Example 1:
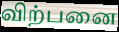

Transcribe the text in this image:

விற்பனை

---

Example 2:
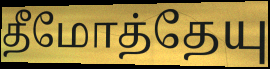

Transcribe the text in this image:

தீமோத்தேயு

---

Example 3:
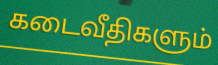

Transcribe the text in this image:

கடைவீதிகளும்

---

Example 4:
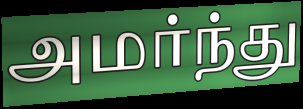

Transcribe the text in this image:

அமர்ந்து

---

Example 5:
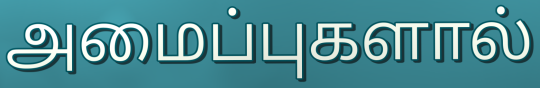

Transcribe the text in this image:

அமைப்புகளால்